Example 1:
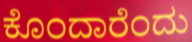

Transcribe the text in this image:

ಕೊಂದಾರೆಂದು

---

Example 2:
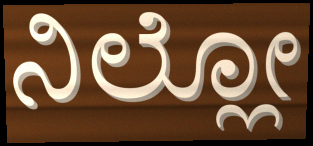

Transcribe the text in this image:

ನಿಲ್ಲೋ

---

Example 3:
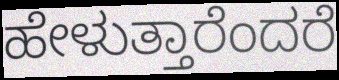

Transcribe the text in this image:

ಹೇಳುತ್ತಾರೆಂದರೆ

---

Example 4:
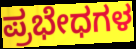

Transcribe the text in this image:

ಪ್ರಭೇಧಗಳ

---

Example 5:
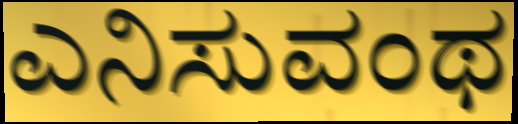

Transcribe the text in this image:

ಎನಿಸುವಂಥ